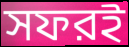
সফরই